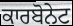
ਕਾਰਬੋਨੇਟ